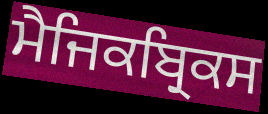
ਮੈਜਿਕਬ੍ਰਿਕਸ